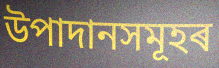
উপাদানসমূহৰ